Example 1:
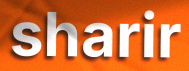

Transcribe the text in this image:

sharir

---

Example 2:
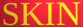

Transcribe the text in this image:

SKIN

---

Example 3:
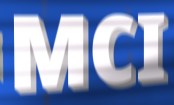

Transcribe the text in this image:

MCI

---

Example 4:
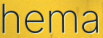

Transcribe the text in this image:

hema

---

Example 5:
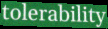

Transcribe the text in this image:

tolerability